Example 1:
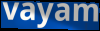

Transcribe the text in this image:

vayam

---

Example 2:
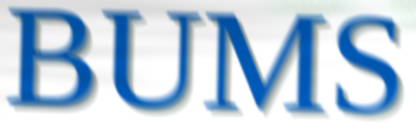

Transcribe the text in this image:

BUMS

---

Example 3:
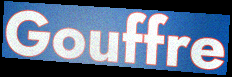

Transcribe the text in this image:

Gouffre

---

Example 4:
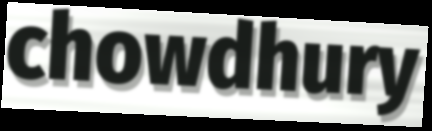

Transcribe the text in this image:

chowdhury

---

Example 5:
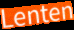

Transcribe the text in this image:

Lenten